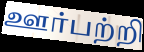
ஊர்பற்றி